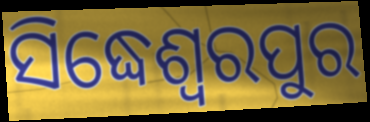
ସିଦ୍ଧେଶ୍ଵରପୁର